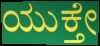
ಯುಕ್ತೇ